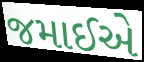
જમાઈએ